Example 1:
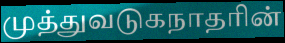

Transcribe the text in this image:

முத்துவடுகநாதரின்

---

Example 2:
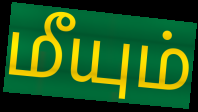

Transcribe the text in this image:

மீயும்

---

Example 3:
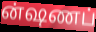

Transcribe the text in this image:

ன்ஷணப்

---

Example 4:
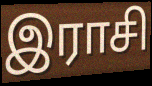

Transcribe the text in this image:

இராசி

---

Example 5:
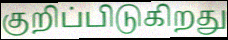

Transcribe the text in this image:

குறிப்பிடுகிறது